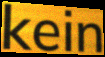
kein